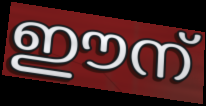
ഈന്